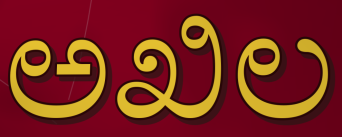
ಅಖಿಲ